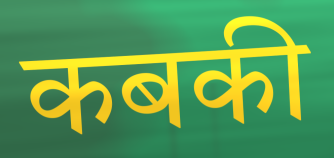
कबकी